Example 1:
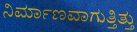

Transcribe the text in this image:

ನಿರ್ಮಾಣವಾಗುತ್ತಿತ್ತು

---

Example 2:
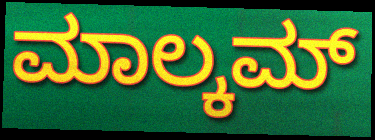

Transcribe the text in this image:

ಮಾಲ್ಕಮ್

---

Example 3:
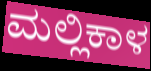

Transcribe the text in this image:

ಮಲ್ಲಿಕಾಳ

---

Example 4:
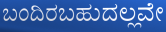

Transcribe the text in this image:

ಬಂದಿರಬಹುದಲ್ಲವೇ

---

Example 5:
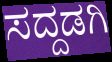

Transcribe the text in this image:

ಸದ್ದಡಗಿ